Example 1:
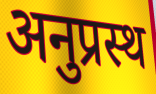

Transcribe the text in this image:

अनुप्रस्थ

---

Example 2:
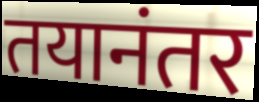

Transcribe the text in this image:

तयानंतर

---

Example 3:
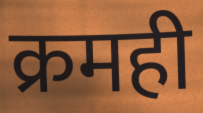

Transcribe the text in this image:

क्रमही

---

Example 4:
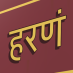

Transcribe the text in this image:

हरणं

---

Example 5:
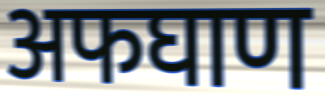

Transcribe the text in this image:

अफघाण